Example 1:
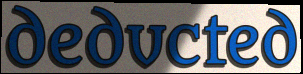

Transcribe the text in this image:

deducted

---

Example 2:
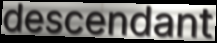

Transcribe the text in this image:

descendant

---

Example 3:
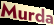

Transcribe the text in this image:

Murda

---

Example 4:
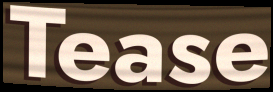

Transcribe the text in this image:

Tease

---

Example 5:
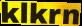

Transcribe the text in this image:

klkrn